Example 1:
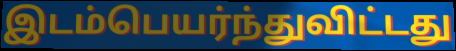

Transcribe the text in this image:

இடம்பெயர்ந்துவிட்டது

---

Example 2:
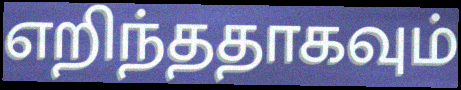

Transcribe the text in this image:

எறிந்ததாகவும்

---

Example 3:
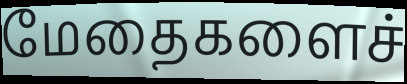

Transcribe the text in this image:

மேதைகளைச்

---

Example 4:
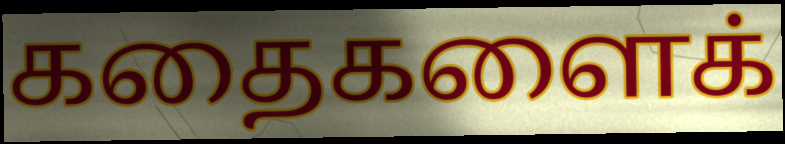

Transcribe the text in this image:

கதைகளைக்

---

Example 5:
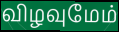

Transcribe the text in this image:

விழவுமேம்